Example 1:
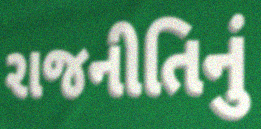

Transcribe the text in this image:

રાજનીતિનું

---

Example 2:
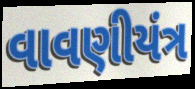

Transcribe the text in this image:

વાવણીયંત્ર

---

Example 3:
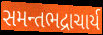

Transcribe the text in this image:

સમન્તભદ્રાચાર્ય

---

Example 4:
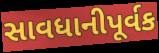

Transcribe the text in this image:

સાવધાનીપૂર્વક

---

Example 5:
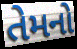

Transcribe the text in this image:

તેમનો